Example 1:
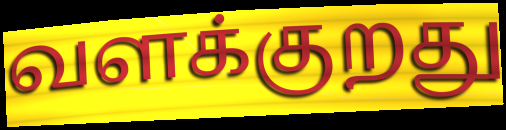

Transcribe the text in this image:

வளக்குறது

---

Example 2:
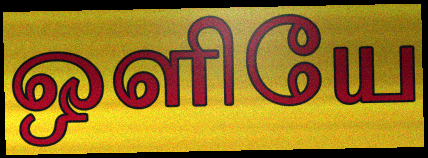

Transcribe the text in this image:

ஒளியே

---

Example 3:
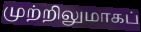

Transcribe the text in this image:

முற்றிலுமாகப்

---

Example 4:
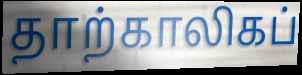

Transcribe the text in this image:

தாற்காலிகப்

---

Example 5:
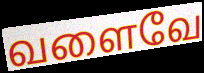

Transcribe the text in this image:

வளைவே